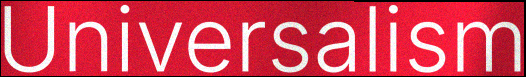
Universalism